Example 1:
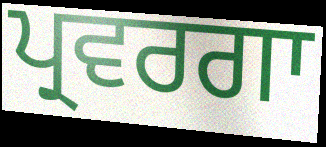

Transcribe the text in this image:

ਪ੍ਰਵਰਗਾ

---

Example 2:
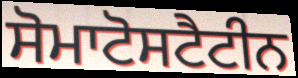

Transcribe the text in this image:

ਸੋਮਾਟੋਸਟੈਟੀਨ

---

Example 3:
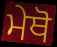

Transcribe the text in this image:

ਮੇਥੋ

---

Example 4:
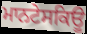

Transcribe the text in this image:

ਮਾਨਟੇਸਕਿਊ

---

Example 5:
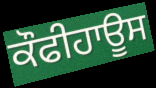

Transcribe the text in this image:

ਕੌਫੀਹਾਊਸ